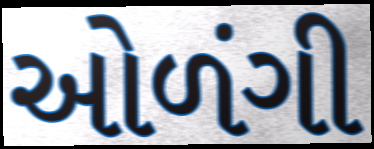
ઓળંગી